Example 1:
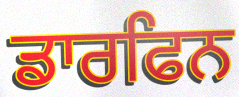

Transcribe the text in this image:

ਡਾਰਫਿਨ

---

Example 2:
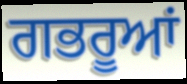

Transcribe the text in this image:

ਗਭਰੂਆਂ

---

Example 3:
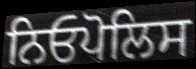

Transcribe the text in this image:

ਨਿਓਪੋਲਿਸ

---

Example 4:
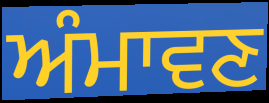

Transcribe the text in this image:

ਅੰਮਾਵਣ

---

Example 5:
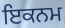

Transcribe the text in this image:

ਇਕਨਮ